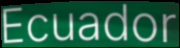
Ecuador